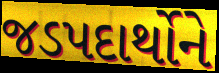
જડપદાર્થોને